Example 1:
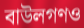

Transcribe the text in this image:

বাউলগণও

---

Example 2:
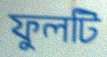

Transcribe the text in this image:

ফুলটি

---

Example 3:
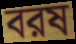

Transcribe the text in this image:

বরষ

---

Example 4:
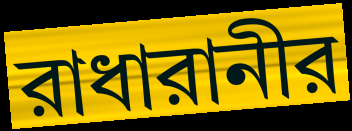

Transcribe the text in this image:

রাধারানীর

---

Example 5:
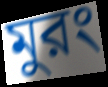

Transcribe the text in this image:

মুরং